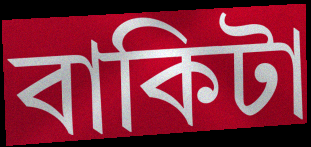
বাকিটা